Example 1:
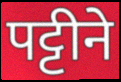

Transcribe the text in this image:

पट्टीने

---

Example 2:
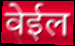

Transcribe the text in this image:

वेईल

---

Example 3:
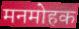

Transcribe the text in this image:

मनमोहक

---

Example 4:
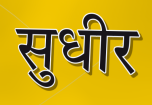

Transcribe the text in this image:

सुधीर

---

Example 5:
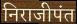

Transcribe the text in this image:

निराजीपंत